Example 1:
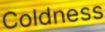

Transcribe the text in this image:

Coldness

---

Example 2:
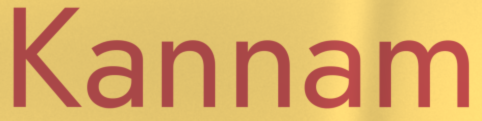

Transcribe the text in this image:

Kannam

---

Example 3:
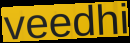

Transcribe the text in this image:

veedhi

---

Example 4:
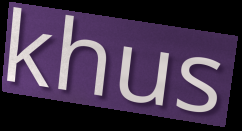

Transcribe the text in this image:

khus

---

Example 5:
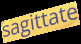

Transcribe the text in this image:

sagittate